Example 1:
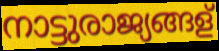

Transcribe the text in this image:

നാട്ടുരാജ്യങ്ങള്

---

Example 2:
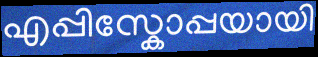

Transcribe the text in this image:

എപ്പിസ്കോപ്പയായി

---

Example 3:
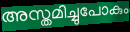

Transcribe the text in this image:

അസ്തമിച്ചുപോകും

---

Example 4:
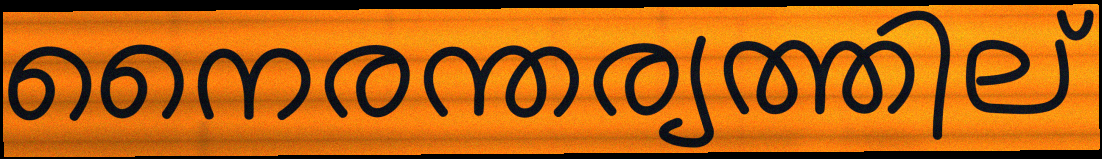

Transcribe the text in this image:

നൈരന്തര്യത്തില്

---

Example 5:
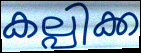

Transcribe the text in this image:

കല്പിക്ക